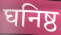
घनिष्ठ